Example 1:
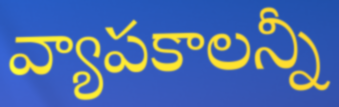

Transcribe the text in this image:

వ్యాపకాలన్నీ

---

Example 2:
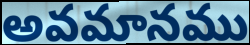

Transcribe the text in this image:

అవమానము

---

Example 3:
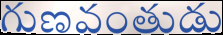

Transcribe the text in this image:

గుణవంతుడు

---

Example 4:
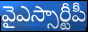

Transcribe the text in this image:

వైఎస్సార్టీపీ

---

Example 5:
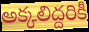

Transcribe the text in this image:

అక్కలిద్దరికీ